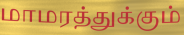
மாமரத்துக்கும்